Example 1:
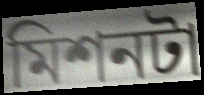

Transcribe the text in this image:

মিশনটা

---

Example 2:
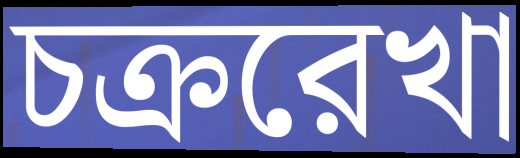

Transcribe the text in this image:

চক্ররেখা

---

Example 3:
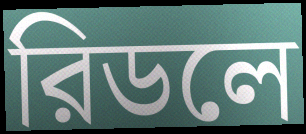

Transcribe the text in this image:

রিডলে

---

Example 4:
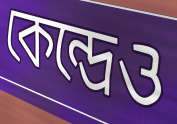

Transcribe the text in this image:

কেন্দ্রেও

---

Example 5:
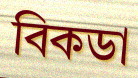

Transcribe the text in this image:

বিকডা